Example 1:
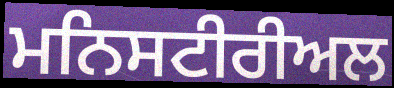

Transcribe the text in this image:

ਮਨਿਸਟੀਰੀਅਲ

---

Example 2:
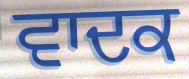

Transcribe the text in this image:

ਵਾਦਕ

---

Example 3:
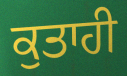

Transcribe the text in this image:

ਕੁਤਾਹੀ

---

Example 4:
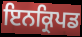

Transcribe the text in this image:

ਇਨਕ੍ਰਿਪਡ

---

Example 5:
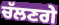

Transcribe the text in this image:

ਚੱਲਣਗੇ